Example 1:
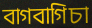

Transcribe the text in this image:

বাগবাগিচা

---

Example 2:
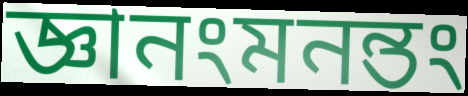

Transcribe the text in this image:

জ্ঞানংমনন্তং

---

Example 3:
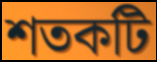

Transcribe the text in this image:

শতকটি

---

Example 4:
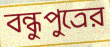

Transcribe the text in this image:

বন্ধুপুত্রের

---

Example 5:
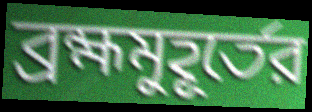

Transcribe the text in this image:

ব্রহ্মমুহূর্তের